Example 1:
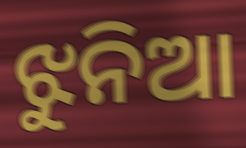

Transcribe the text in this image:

ଝୁନିଆ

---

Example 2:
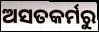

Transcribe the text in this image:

ଅସତକର୍ମରୁ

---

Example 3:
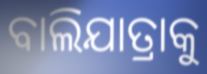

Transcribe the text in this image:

ବାଲିଯାତ୍ରାକୁ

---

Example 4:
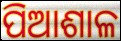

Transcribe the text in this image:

ପିଆଶାଳ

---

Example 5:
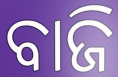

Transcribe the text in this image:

ବାଜି